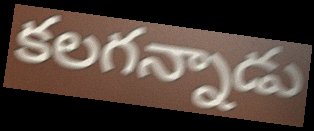
కలగన్నాడు